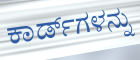
ಕಾರ್ಡ್‌ಗಳನ್ನು